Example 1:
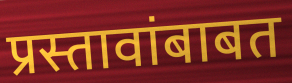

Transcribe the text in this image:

प्रस्तावांबाबत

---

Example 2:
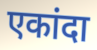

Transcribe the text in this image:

एकांदा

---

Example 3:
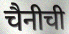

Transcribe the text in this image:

चैनीची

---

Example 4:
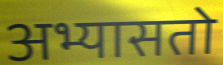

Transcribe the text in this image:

अभ्यासतो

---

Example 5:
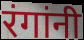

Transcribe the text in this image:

रंगांनी